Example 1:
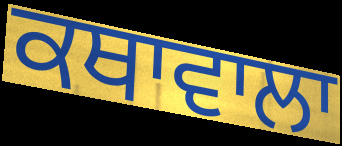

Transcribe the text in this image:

ਕਥਾਵਾਲਾ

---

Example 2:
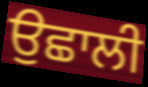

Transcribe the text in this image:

ਉਛਾਲੀ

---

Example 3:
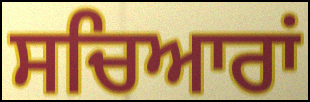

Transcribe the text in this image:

ਸਚਿਆਰਾਂ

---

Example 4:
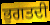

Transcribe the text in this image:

ਭੁਗਤਦੀ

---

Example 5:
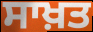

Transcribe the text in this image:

ਸਾਖ਼ਤ